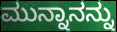
ಮುನ್ನಾನನ್ನು